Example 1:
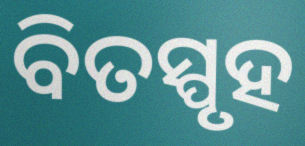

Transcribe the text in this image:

ବିତସ୍ପୃହ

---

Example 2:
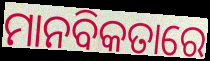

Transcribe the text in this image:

ମାନବିକତାରେ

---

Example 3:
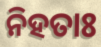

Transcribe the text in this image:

ନିହତାଃ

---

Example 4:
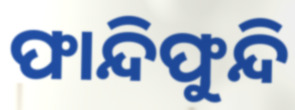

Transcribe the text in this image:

ଫାନ୍ଦିଫୁନ୍ଦି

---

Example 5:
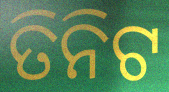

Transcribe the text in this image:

ତିନିଟ